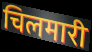
चिलमारी